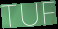
TUF